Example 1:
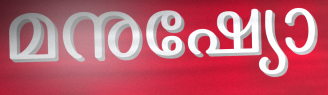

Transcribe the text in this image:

മനുഷ്യോ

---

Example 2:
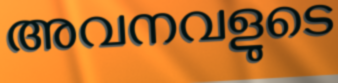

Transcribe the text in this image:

അവനവളുടെ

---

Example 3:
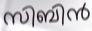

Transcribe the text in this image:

സിബിൻ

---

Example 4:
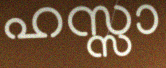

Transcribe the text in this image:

ഹസ്സാ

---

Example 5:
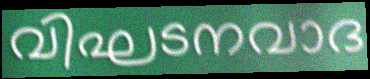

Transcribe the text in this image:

വിഘടനവാദ